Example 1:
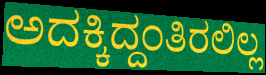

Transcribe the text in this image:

ಅದಕ್ಕಿದ್ದಂತಿರಲಿಲ್ಲ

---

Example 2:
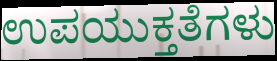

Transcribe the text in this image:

ಉಪಯುಕ್ತತೆಗಳು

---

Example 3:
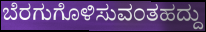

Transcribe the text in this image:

ಬೆರಗುಗೊಳಿಸುವಂತಹದ್ದು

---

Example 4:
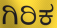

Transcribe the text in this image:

ಗಿರಿಕ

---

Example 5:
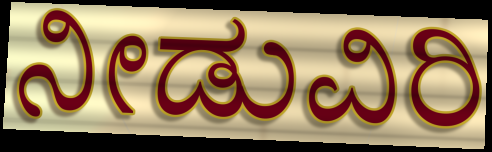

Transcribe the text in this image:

ನೀಡುವಿರಿ